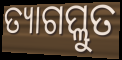
ତ୍ୟାଗପ୍ଲୁତ